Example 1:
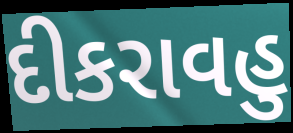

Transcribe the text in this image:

દીકરાવહુ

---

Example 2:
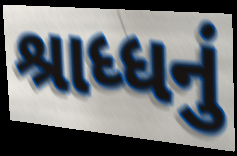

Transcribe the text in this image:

શ્રાધ્ધનું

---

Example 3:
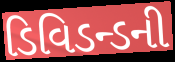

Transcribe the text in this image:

ડિવિડન્ડની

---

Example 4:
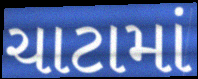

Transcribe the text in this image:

ચાટામાં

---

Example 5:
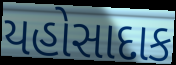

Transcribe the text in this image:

યહોસાદાક